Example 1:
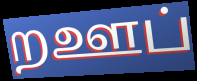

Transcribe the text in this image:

றஊப்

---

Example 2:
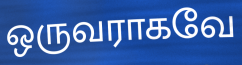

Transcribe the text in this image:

ஒருவராகவே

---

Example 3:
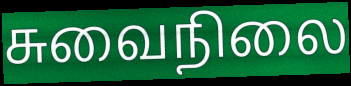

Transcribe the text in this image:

சுவைநிலை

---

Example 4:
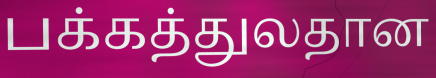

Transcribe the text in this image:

பக்கத்துலதான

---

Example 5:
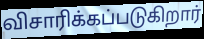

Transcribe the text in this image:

விசாரிக்கப்படுகிறார்